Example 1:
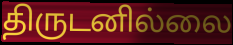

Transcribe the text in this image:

திருடனில்லை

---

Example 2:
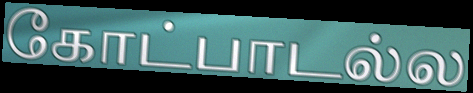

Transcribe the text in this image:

கோட்பாடல்ல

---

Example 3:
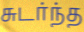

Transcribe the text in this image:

சுடர்ந்த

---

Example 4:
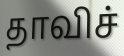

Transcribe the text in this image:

தாவிச்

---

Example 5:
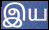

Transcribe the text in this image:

இய